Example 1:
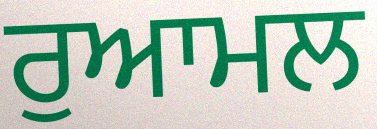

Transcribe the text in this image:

ਰੁਆਮਲ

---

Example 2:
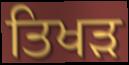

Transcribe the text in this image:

ਤਿਖੜ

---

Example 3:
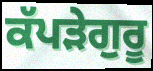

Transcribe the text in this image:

ਕੱਪੜੇਗੁਰੂ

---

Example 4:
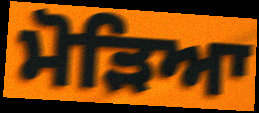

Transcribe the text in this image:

ਮੋੜਿਆ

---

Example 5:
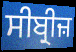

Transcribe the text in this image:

ਸੀਬ੍ਰੀਜ਼